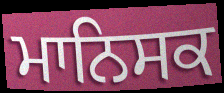
ਮਾਨਿਸਕ